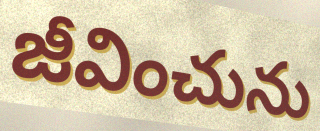
జీవించును